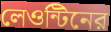
লেওন্টিনের